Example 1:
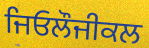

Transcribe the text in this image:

ਜਿਓਲੌਜੀਕਲ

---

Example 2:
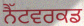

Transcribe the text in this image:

ਨੈੱਟਵਰਕਡ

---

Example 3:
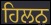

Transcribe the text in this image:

ਹਿਲਨ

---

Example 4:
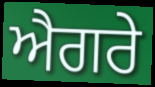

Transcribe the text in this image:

ਐਗਰੇ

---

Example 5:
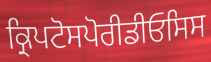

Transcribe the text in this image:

ਕ੍ਰਿਪਟੋਸਪੋਰੀਡੀਓਸਿਸ